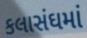
કલાસંઘમાં